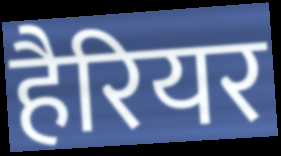
हैरियर